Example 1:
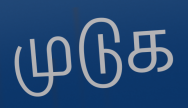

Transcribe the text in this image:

முடுக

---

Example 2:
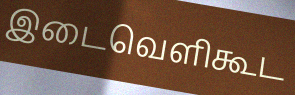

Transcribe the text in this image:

இடைவெளிகூட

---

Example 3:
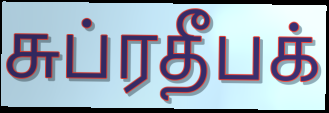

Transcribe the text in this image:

சுப்ரதீபக்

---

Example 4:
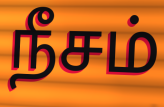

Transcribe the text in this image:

நீசம்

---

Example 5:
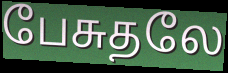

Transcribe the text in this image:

பேசுதலே